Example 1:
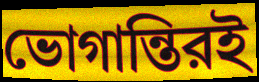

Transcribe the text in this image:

ভোগান্তিরই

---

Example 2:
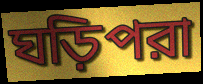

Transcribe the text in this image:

ঘড়িপরা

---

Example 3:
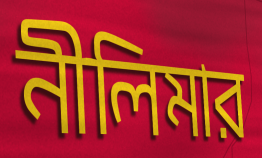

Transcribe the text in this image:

নীলিমার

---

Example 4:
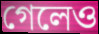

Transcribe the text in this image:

গেলেও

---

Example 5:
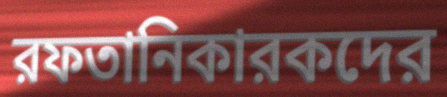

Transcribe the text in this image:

রফতানিকারকদের